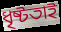
ধৃষ্টতাই